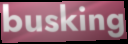
busking